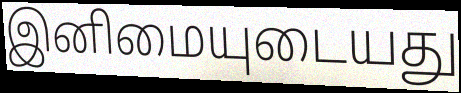
இனிமையுடையது